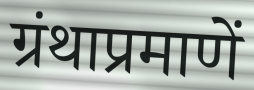
ग्रंथाप्रमाणें